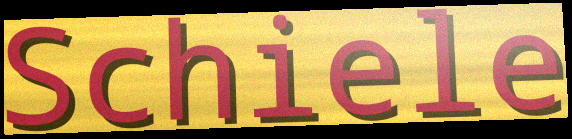
Schiele